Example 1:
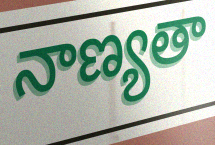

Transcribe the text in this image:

నాణ్యతా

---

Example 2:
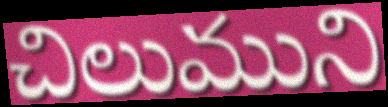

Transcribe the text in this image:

చిలుముని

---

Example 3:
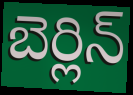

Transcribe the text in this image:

బెర్లిన్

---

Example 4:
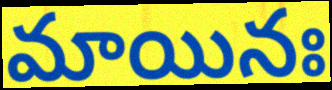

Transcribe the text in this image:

మాయినః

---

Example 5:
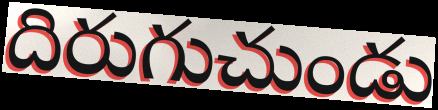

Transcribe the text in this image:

దిరుగుచుండు